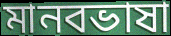
মানবভাষা